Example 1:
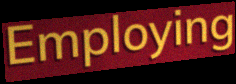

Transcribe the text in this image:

Employing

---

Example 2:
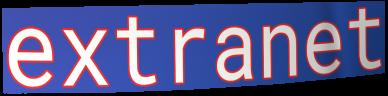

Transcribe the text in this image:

extranet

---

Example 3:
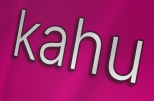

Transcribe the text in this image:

kahu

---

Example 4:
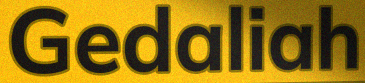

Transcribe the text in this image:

Gedaliah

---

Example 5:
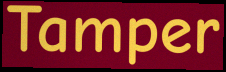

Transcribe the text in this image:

Tamper